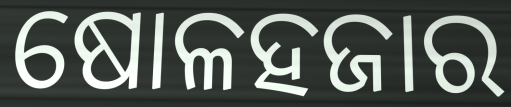
ଷୋଳହଜାର